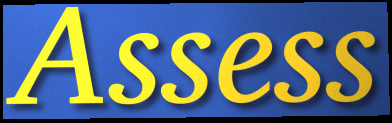
Assess